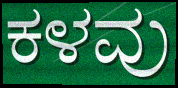
ಕಳವು